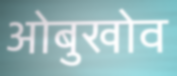
ओबुखोव